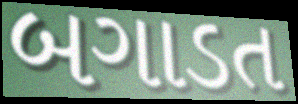
બગાડત